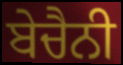
ਬੇਚੈਨੀ